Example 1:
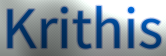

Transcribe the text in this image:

Krithis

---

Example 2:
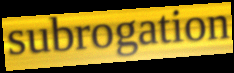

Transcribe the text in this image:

subrogation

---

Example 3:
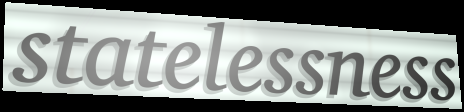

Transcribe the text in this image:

statelessness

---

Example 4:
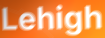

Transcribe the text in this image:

Lehigh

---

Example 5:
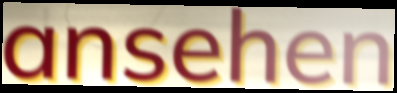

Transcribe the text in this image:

ansehen